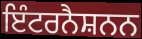
ਇੰਟਰਨੈਸ਼ਨਨ